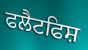
ਫਲੈਟਫਿਸ਼